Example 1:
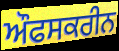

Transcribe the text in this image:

ਔਫਸਕਰੀਨ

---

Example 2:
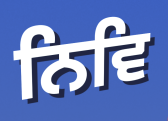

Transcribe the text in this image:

ਨਿਵਿ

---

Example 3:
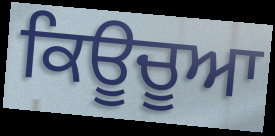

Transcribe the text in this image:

ਕਿਊਚੂਆ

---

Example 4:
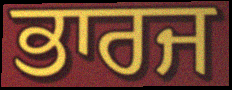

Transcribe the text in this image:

ਭਾਰਜ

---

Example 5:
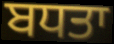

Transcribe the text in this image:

ਬਧਤਾ